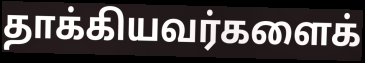
தாக்கியவர்களைக்